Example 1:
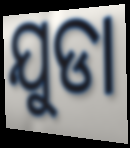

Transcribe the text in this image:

ଯୁଡା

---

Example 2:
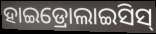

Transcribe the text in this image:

ହାଇଡ୍ରୋଲାଇସିସ୍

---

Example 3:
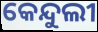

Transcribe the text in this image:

କେନ୍ଦୁଲୀ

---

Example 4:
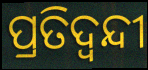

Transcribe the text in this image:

ପ୍ରତିଦ୍ଵନ୍ଦୀ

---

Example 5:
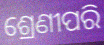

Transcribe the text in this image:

ଶ୍ରେଣୀପରି